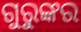
ଗୁରୁଙ୍କର